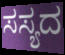
ಸಸ್ಯದ